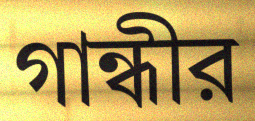
গান্ধীর